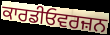
ਕਾਰਡੀਓਵਰਜ਼ਨ